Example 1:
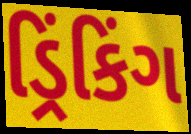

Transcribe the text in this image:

ડ્રિંકિંગ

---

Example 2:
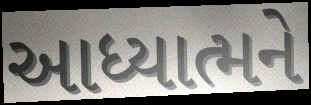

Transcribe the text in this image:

આધ્યાત્મને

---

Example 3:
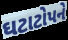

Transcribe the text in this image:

ઘટાટોપને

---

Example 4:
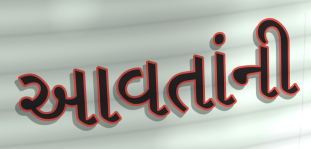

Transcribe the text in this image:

આવતાંની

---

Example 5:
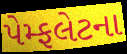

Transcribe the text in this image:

પેમ્ફલેટના